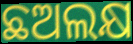
ଛଅଲକ୍ଷ